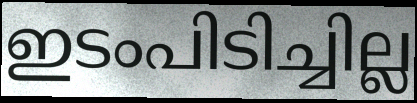
ഇടംപിടിച്ചില്ല